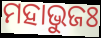
ମହାଭୁଜଃ